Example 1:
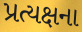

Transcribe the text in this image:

પ્રત્યક્ષના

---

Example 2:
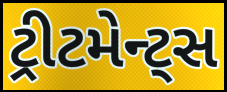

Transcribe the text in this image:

ટ્રીટમેન્ટ્સ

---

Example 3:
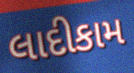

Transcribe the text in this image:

લાદીકામ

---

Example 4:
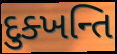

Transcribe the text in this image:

દુક્ખન્તિ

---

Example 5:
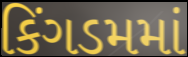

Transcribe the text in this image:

કિંગડમમાં